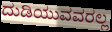
ದುಡಿಯುವವರಲ್ಲ